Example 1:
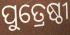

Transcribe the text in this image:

ପୁତ୍ରେଷ୍ଠୀ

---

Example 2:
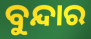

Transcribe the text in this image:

ବୁନ୍ଦାର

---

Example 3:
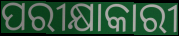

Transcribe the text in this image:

ପରୀକ୍ଷାକାରୀ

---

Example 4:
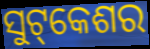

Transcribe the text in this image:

ସୁଟ୍‌କେଶର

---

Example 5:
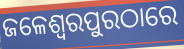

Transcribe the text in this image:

ଜଳେଶ୍ୱରପୁରଠାରେ